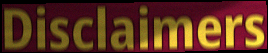
Disclaimers